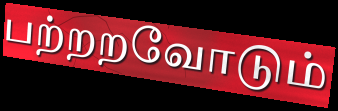
பற்றறவோடும்